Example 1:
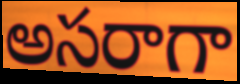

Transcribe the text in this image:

అసరాగా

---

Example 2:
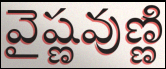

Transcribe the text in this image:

వైష్ణవుణ్ణి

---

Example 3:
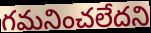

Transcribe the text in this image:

గమనించలేదని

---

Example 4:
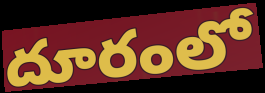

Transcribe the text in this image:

దూరంలో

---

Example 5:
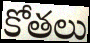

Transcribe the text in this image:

కోతలు